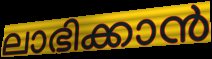
ലാഭിക്കാൻ